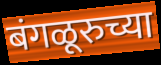
बंगळूरुच्या